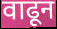
वाढून